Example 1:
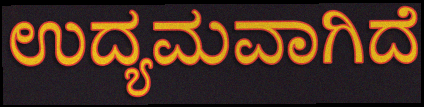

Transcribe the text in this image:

ಉದ್ಯಮವಾಗಿದೆ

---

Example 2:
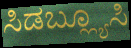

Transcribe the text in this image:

ಸಿಡಬ್ಲ್ಯೂಸಿ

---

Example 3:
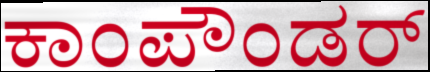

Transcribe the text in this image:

ಕಾಂಪೌಂಡರ್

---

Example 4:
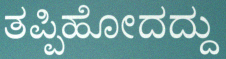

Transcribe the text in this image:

ತಪ್ಪಿಹೋದದ್ದು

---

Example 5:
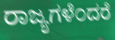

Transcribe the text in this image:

ರಾಜ್ಯಗಳೆಂದರೆ